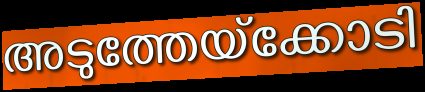
അടുത്തേയ്‌ക്കോടി